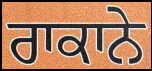
ਰਾਕਾਨੇ